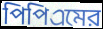
পিপিএমের